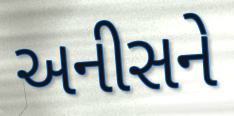
અનીસને